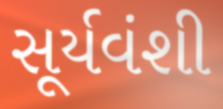
સૂર્યવંશી